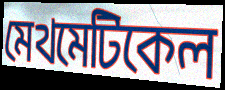
মেথমেটিকেল